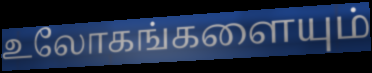
உலோகங்களையும்